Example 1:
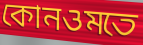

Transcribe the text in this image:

কোনওমতে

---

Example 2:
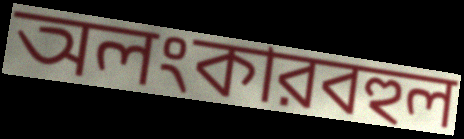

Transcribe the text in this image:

অলংকারবহুল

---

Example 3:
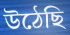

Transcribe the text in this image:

উঠেছি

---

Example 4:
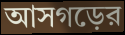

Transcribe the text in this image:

আসগড়ের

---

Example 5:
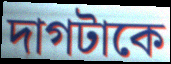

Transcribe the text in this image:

দাগটাকে